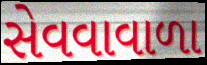
સેવવાવાળા